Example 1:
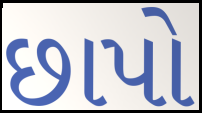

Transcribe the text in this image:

છાપો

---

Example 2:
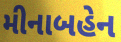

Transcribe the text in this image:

મીનાબહેન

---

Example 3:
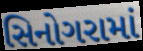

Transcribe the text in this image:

સિનોગરામાં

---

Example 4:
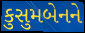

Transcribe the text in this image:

કુસુમબેનને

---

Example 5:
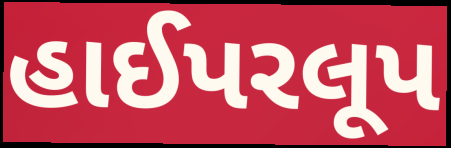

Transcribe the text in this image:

હાઈપરલૂપ